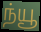
ந்யூ